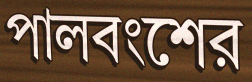
পালবংশের